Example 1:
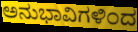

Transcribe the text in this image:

ಅನುಭಾವಿಗಳಿಂದ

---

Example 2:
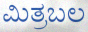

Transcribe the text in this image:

ಮಿತ್ರಬಲ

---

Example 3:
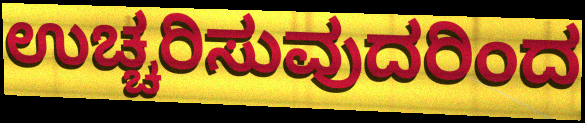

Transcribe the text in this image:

ಉಚ್ಚರಿಸುವುದರಿಂದ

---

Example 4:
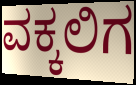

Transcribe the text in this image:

ವಕ್ಕಲಿಗ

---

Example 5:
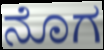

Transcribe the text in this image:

ನೊಗ